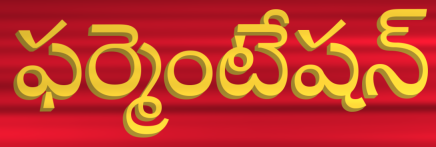
ఫర్మెంటేషన్